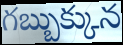
గబ్బుక్కున